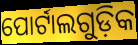
ପୋର୍ଟାଲଗୁଡ଼ିକ